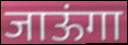
जाऊंगा